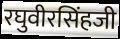
रघुवीरसिंहजी